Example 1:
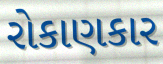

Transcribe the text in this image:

રોકાણકાર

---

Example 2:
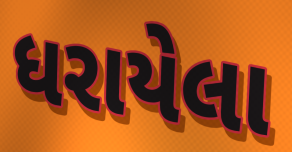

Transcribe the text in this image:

ધરાયેલા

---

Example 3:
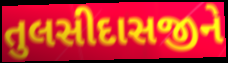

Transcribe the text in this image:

તુલસીદાસજીને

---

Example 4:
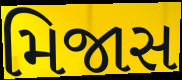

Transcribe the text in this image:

મિજાસ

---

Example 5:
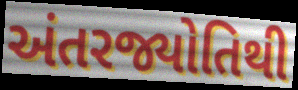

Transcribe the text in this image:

અંતરજ્યોતિથી